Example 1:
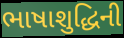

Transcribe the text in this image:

ભાષાશુદ્ધિની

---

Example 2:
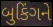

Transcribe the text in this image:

બુકિંગને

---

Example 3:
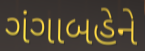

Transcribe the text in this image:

ગંગાબહેને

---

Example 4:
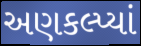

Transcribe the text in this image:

અણકલ્પ્યાં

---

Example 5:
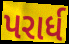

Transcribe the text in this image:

પરાર્ધ